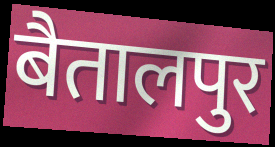
बैतालपुर